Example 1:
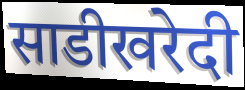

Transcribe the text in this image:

साडीखरेदी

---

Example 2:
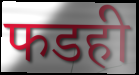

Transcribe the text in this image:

फडही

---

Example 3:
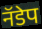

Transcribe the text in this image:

नॅडेप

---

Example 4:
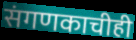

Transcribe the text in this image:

संगणकाचीही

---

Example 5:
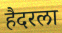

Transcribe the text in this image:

हैदरला